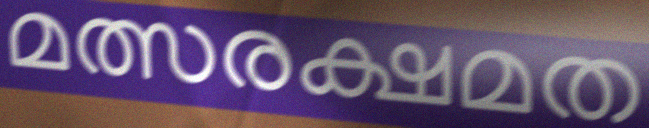
മത്സരക്ഷമത